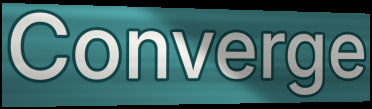
Converge